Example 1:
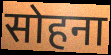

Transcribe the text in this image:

सोहना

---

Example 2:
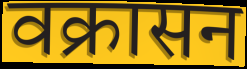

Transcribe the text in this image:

वक्रासन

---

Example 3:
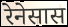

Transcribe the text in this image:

रेनेसास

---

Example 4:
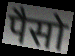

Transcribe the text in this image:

पैसो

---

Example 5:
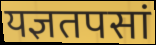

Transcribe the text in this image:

यज्ञतपसां